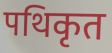
पथिकृत